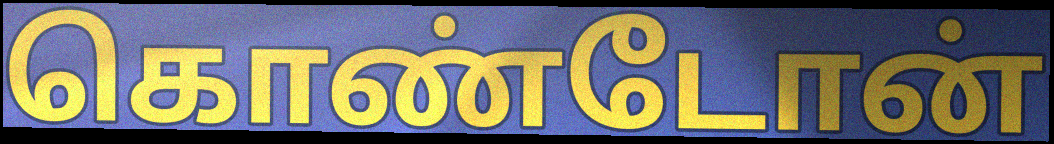
கொண்டோன்